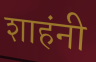
शाहंनी